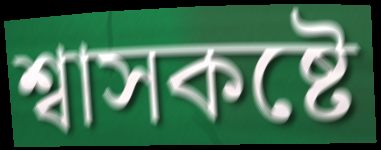
শ্বাসকষ্টে